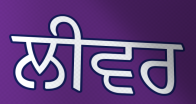
ਲੀਵਰ